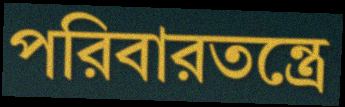
পরিবারতন্ত্রে